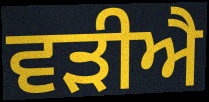
ਵੜੀਐ